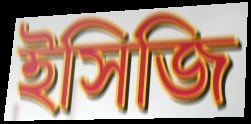
ইসিজি